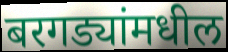
बरगड्यांमधील